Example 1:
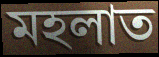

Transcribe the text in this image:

মহলাত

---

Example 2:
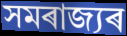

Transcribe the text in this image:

সমৰাজ্যৰ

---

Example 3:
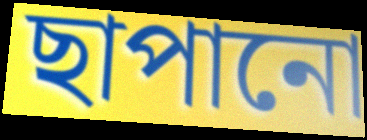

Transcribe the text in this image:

ছাপানো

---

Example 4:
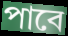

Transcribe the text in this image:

পাবে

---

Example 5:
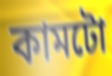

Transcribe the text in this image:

কামটো